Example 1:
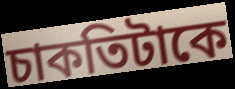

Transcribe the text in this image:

চাকতিটাকে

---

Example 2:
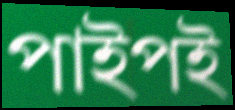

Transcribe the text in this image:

পাইপই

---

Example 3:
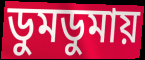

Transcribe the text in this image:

ডুমডুমায়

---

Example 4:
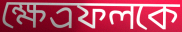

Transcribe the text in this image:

ক্ষেত্রফলকে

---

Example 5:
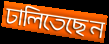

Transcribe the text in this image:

ঢালিতেছেন